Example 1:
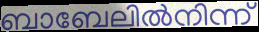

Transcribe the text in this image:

ബാബേലിൽനിന്ന്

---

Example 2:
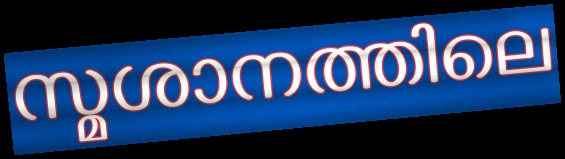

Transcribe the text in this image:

സ്മശാനത്തിലെ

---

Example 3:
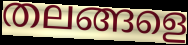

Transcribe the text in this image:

തലങ്ങളെ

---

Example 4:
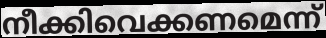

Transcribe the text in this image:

നീക്കിവെക്കണമെന്ന്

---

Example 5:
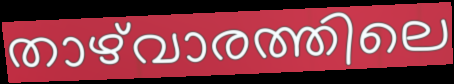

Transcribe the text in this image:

താഴ്‌വാരത്തിലെ